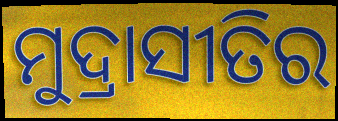
ମୁଦ୍ରାସୀତିର